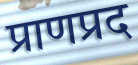
प्राणप्रद